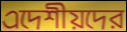
এদেশীয়দের